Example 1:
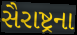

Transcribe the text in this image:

સૈરાષ્ટ્રના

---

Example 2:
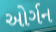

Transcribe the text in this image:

ઓર્ગન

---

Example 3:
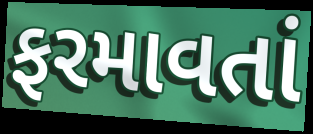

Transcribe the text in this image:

ફરમાવતાં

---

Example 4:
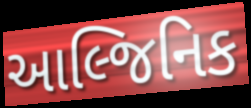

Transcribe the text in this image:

આલ્જિનિક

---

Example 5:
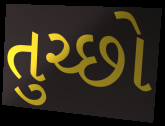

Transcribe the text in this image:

તુચ્છો